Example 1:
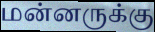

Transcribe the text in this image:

மன்னருக்கு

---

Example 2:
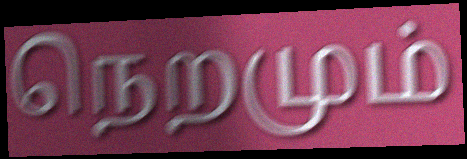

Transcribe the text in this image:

நெறமும்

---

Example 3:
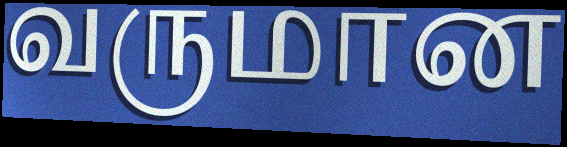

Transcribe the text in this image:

வருமான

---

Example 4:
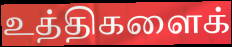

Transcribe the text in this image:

உத்திகளைக்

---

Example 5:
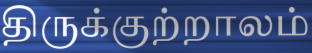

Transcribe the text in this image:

திருக்குற்றாலம்